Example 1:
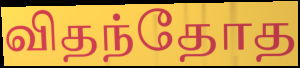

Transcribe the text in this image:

விதந்தோத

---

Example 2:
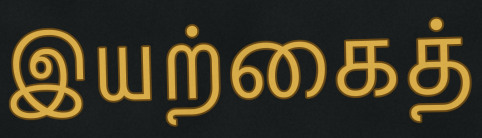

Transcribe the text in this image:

இயற்கைத்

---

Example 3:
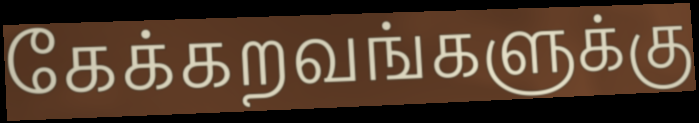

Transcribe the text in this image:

கேக்கறவங்களுக்கு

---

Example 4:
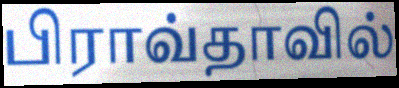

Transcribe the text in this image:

பிராவ்தாவில்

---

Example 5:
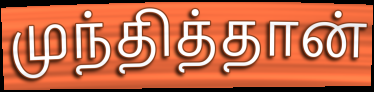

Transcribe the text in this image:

முந்தித்தான்